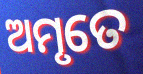
ଅମୃତେ